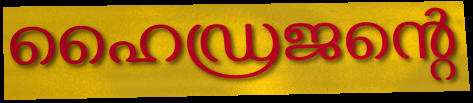
ഹൈഡ്രജന്റെ